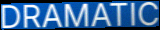
DRAMATIC